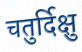
चतुर्दिक्षु